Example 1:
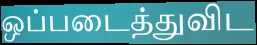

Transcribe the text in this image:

ஒப்படைத்துவிட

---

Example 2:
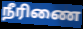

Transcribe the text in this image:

நீரிணை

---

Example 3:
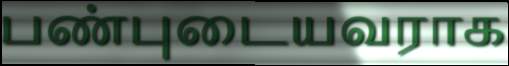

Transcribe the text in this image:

பண்புடையவராக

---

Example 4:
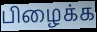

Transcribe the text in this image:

பிழைக்க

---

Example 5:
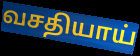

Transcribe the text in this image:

வசதியாய்